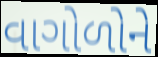
વાગોળોને